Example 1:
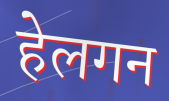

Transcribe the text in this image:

हेलगन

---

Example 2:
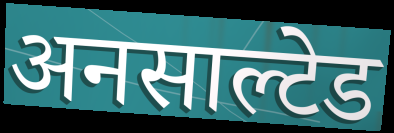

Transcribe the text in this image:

अनसाल्टेड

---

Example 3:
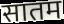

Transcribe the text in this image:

सातम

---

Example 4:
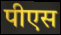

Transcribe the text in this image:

पीएस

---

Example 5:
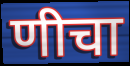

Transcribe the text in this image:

णीचा